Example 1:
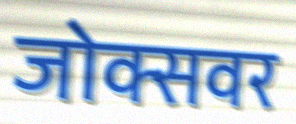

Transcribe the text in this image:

जोक्सवर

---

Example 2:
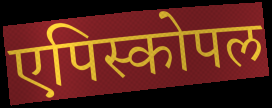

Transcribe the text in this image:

एपिस्कोपल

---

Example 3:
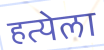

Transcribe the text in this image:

हत्येला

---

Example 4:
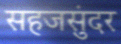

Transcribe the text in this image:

सहजसुंदर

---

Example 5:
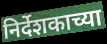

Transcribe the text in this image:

निर्देशकाच्या